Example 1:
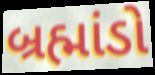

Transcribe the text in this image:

બ્રહ્માંડો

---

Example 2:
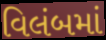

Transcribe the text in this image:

વિલંબમાં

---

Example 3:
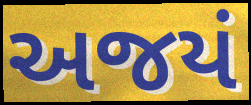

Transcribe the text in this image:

અજયં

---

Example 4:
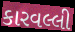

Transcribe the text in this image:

કારવલ્લી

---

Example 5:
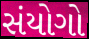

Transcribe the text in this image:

સંયોગો